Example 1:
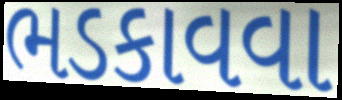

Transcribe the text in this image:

ભડકાવવા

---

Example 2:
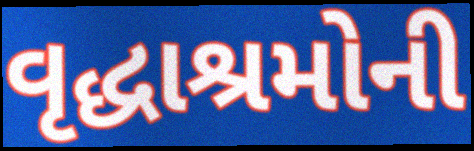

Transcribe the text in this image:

વૃદ્ધાશ્રમોની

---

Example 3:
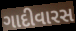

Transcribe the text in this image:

ગાદીવારસ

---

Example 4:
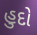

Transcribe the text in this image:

હુદો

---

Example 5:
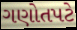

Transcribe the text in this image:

ગણોતપટે